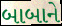
બાબાને